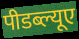
पीडब्ल्यूए